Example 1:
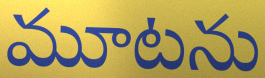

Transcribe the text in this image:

మూటను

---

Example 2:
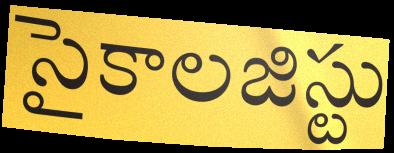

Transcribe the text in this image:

సైకాలజిస్టు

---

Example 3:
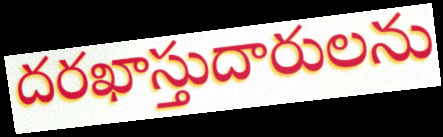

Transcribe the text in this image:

దరఖాస్తుదారులను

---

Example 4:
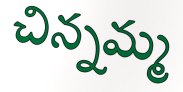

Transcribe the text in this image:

చిన్నమ్మ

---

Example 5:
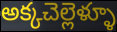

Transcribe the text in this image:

అక్కచెల్లెళ్ళూ